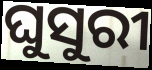
ଘୁସୁରୀ